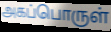
அகப்பொருள்